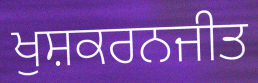
ਖੁਸ਼ਕਰਨਜੀਤ